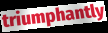
triumphantly